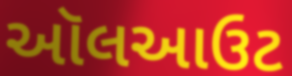
ઑલઆઉટ